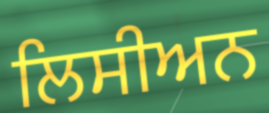
ਲਿਸੀਅਨ